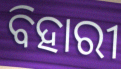
ବିହାରୀ